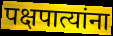
पक्षपात्यांना